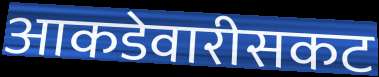
आकडेवारीसकट